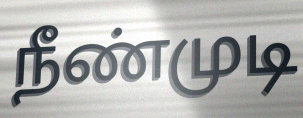
நீண்முடி